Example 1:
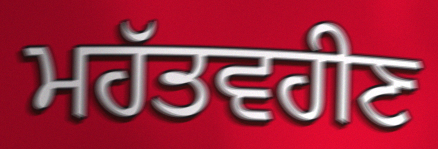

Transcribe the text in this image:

ਮਹੱਤਵਹੀਣ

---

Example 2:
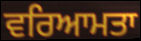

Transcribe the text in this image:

ਵਰਿਆਮਤਾ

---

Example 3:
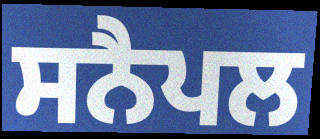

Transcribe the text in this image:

ਸਨੈਪਲ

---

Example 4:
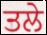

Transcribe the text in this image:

ਤਲੇ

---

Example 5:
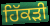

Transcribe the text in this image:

ਹਿੱਕੜੀ